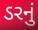
ડરનું